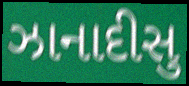
ઝાનાદીસુ